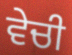
ਵੇਚੀ